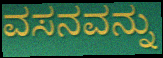
ವಸನವನ್ನು